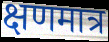
क्षणमात्र